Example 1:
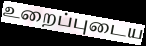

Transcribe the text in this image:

உறைப்புடைய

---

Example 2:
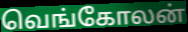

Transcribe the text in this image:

வெங்கோலன்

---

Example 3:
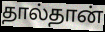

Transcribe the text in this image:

தால்தான்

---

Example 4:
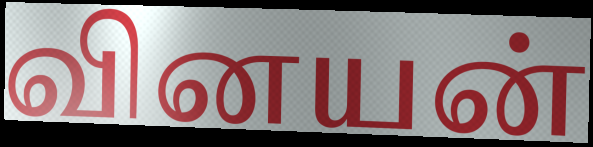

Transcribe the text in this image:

வினயன்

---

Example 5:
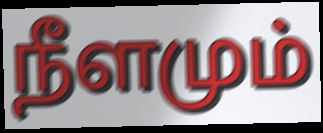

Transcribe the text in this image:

நீளமும்